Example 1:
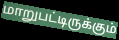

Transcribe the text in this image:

மாறுபட்டிருக்கும்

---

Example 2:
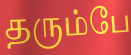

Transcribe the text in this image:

தரும்பே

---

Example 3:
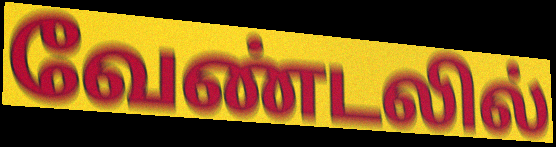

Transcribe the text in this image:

வேண்டலில்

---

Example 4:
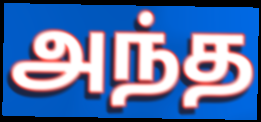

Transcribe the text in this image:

அந்த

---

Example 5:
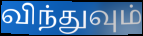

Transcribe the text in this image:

விந்துவும்